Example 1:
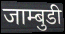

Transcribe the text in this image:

जाम्बुडी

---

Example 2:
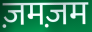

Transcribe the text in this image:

ज़मज़म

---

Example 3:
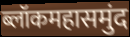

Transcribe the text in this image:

ब्लॉकमहासमुंद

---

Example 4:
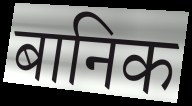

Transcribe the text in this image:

बानिक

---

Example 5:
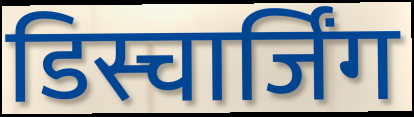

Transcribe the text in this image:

डिस्चार्जिंग